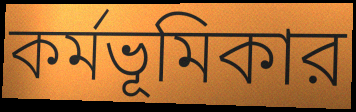
কর্মভূমিকার